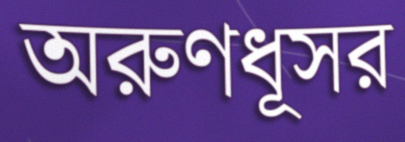
অরুণধূসর